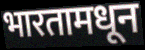
भारतामधून